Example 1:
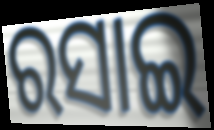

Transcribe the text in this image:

ରସାଇ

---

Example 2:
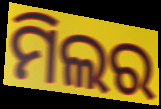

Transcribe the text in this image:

ମିଲର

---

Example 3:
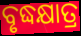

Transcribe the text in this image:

ବୃଦ୍ଧକ୍ଷାତ୍ର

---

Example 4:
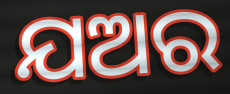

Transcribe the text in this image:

ଯଅର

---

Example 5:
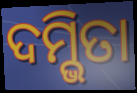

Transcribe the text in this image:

ଦମ୍ଭିତା